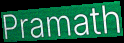
Pramath